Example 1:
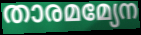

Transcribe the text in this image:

താരമമ്യേന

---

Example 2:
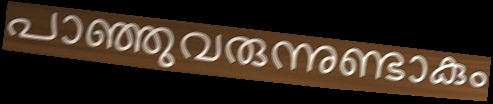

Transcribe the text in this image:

പാഞ്ഞുവരുന്നുണ്ടാകും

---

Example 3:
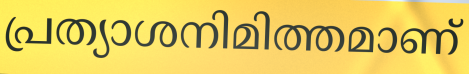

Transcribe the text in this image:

പ്രത്യാശനിമിത്തമാണ്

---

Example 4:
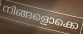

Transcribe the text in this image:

നിങ്ങളൊക്കെ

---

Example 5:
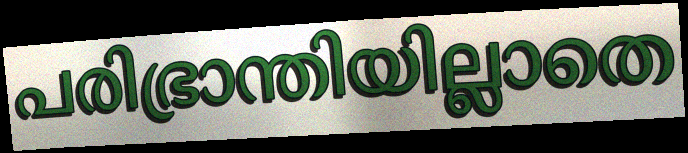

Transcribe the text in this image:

പരിഭ്രാന്തിയില്ലാതെ